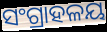
ସଂଗ୍ରାହଳୟ